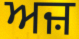
ਅਜ਼